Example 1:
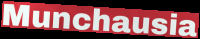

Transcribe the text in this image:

Munchausia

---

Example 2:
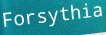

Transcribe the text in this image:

Forsythia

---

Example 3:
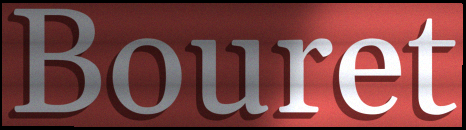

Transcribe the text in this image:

Bouret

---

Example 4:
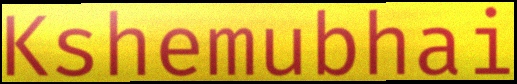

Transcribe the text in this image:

Kshemubhai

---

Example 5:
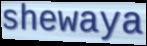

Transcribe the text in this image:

shewaya